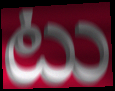
టు